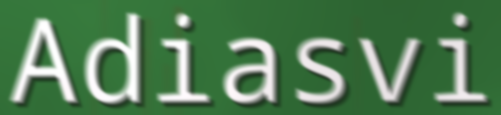
Adiasvi